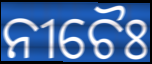
ନୀଚୈଃ